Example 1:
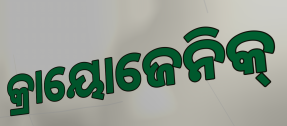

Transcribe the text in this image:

କ୍ରାୟୋଜେନିକ୍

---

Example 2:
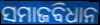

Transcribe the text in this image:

ସମାଜବିଧାନ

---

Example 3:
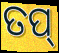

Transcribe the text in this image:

ତପ୍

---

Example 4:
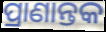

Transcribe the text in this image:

ପ୍ରାଣାନ୍ତକ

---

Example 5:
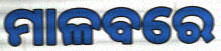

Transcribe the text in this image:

ମାଳବରେ